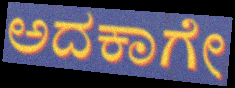
ಅದಕಾಗೇ